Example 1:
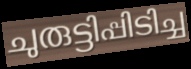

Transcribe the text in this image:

ചുരുട്ടിപ്പിടിച്ച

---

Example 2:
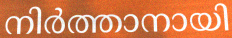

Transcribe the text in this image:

നിർത്താനായി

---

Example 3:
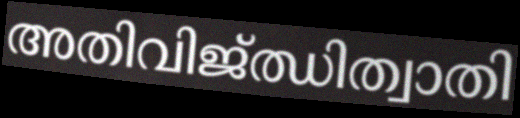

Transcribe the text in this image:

അതിവിജ്ഝിത്വാതി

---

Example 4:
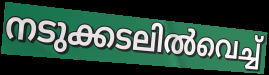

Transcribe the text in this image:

നടുക്കടലിൽവെച്ച്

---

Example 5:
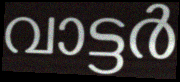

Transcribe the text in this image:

വാട്ടർ